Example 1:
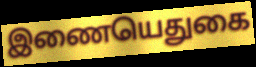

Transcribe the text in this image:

இணையெதுகை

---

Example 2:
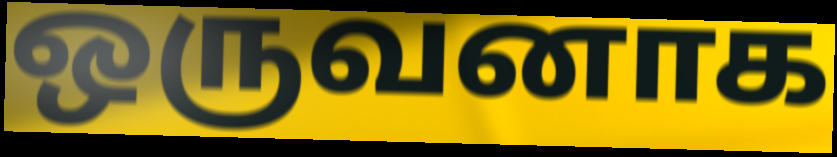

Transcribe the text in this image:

ஒருவனாக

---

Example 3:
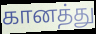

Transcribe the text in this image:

கானத்து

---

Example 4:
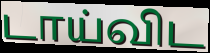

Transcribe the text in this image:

டாய்விட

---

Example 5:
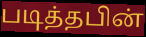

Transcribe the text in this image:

படித்தபின்